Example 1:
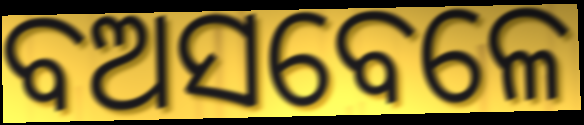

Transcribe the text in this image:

ବଅସବେଳେ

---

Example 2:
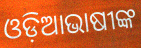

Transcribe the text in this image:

ଓଡ଼ିଆଭାଷୀଙ୍କ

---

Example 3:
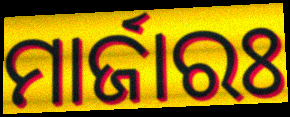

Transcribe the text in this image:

ମାର୍ଜାରଃ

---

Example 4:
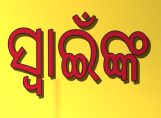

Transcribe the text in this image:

ସ୍ଵାଇଁଙ୍କ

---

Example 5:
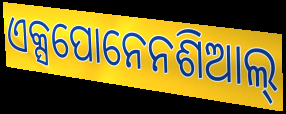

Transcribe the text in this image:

ଏକ୍ସପୋନେନଶିଆଲ୍